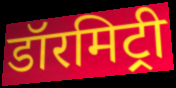
डॉरमिट्री